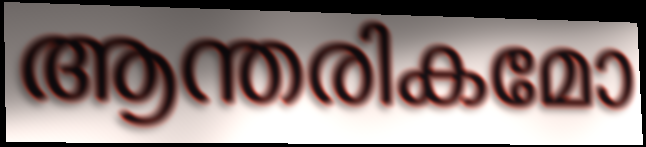
ആന്തരികമോ